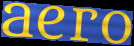
aero